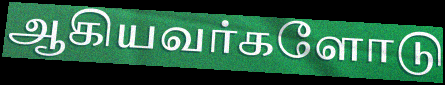
ஆகியவர்களோடு